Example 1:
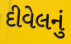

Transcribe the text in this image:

દીવેલનું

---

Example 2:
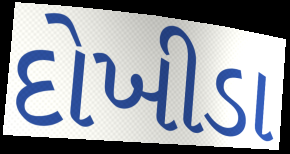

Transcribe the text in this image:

દોખીડા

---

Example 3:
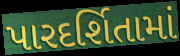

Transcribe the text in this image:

પારદર્શિતામાં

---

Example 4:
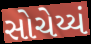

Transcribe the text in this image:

સોચેય્યં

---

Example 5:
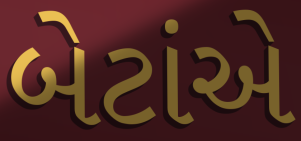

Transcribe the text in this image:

બેટાંએ